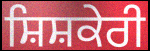
ਸ਼ਿਸ਼ਕੇਰੀ